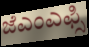
ಜೆಎಂಎಫ್ಸಿ